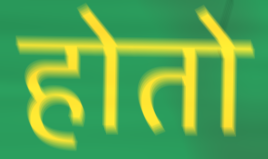
होतो